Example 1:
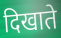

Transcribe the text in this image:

दिखाते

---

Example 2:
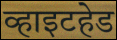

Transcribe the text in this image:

व्हाइटहेड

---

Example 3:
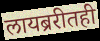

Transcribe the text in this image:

लायब्ररीतही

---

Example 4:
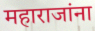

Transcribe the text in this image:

महाराजांना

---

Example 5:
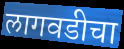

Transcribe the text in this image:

लागवडीचा